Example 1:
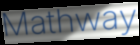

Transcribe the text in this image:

Mathway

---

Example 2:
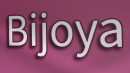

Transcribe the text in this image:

Bijoya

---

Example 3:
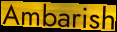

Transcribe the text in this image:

Ambarish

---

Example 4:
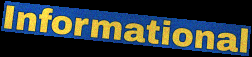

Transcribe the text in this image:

Informational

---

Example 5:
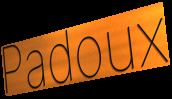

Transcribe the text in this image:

Padoux